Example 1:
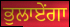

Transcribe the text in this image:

ਭੁਲਾਏਂਗਾ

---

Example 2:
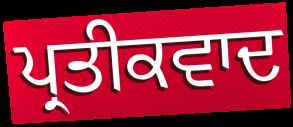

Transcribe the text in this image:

ਪ੍ਰਤੀਕਵਾਦ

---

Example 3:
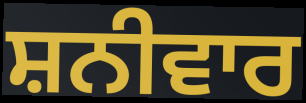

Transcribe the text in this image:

ਸ਼ਨੀਵਾਰ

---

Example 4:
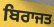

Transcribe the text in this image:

ਬਿਰਾਜਤ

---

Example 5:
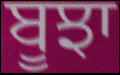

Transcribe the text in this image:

ਬੂਝਾ